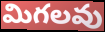
మిగలవు